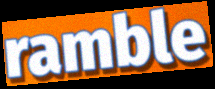
ramble